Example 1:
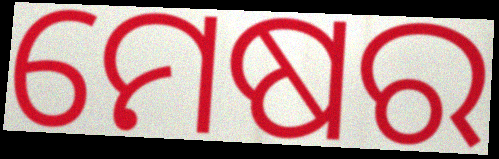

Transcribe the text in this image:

ମେଷର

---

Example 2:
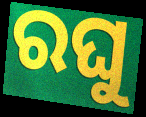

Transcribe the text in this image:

ରଘୁ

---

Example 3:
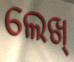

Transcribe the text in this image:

ଲେଖ୍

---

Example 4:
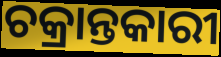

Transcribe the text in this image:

ଚକ୍ରାନ୍ତକାରୀ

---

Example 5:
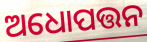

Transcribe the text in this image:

ଅଧୋପତ୍ତନ